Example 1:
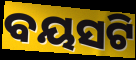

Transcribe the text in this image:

ବୟସଟି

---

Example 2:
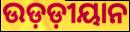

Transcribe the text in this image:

ଉଡ଼ଡ଼ୀୟାନ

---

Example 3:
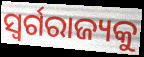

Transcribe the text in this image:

ସ୍ଵର୍ଗରାଜ୍ୟକୁ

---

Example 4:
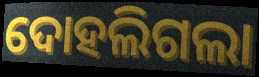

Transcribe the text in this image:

ଦୋହଲିଗଲା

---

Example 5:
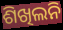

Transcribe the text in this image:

ଶିଖିଲନି